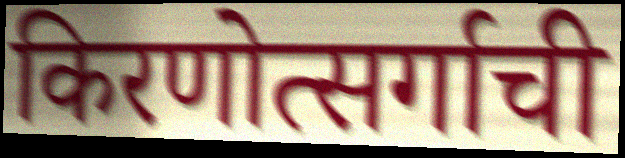
किरणोत्सर्गाची